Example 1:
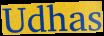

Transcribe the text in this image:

Udhas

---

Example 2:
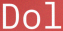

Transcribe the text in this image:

Dol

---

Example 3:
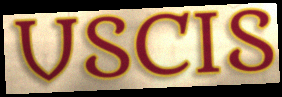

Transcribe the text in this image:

USCIS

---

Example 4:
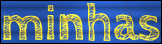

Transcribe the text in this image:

minhas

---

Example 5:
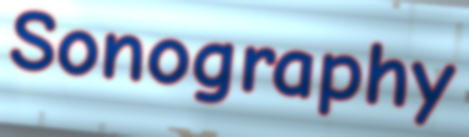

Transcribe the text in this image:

Sonography